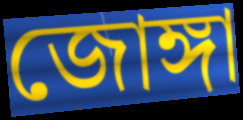
জোঙ্গা